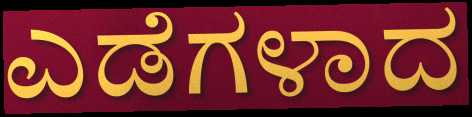
ಎಡೆಗಳಾದ